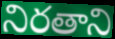
నిరతాని